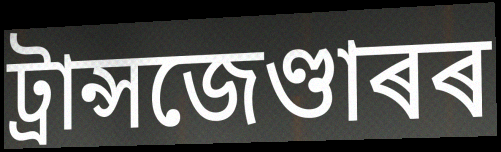
ট্ৰান্সজেণ্ডাৰৰ